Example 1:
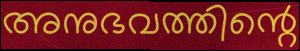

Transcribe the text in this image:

അനുഭവത്തിന്റെ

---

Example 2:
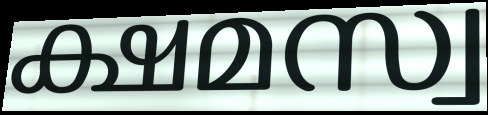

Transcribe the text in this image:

ക്ഷമസ്വ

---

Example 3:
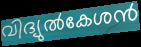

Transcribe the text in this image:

വിദ്യുൽകേശൻ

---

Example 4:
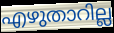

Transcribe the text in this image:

എഴുതാറില്ല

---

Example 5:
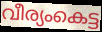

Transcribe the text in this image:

വീര്യംകെട്ട